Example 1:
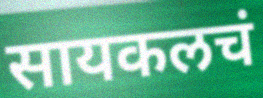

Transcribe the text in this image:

सायकलचं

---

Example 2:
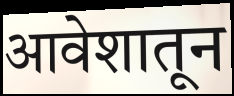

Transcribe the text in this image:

आवेशातून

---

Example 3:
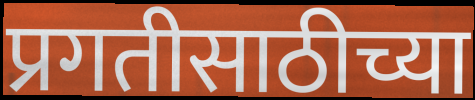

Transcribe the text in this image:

प्रगतीसाठीच्या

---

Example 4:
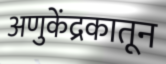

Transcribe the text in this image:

अणुकेंद्रकातून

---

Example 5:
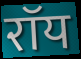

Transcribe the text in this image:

रॉय